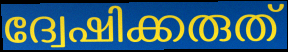
ദ്വേഷിക്കരുത്